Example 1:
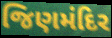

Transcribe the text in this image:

જિણમંદિર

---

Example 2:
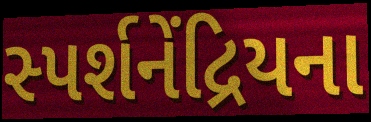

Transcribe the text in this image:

સ્પર્શનેંદ્રિયના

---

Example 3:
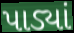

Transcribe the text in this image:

પાડ્યાં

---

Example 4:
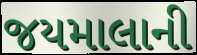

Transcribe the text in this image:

જયમાલાની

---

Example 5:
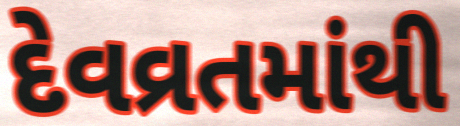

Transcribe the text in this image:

દેવવ્રતમાંથી